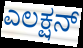
ಎಲಕ್ಷನ್